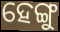
ହେଙ୍ଗୁ